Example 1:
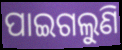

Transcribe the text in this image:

ପାଇଗଲୁଣି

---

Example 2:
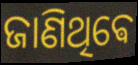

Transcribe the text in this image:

ଜାଣିଥିଵେ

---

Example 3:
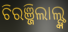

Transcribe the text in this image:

ଚିରଞ୍ଜିଲାଲ୍ଙ୍କ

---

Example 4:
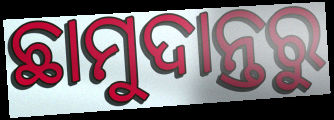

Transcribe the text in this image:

ଛାମୁଦାନ୍ତରୁ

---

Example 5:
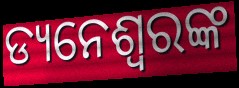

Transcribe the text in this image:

ଡ୍ୟନେଶ୍ୱରଙ୍କ